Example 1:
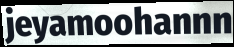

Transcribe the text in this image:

jeyamoohannn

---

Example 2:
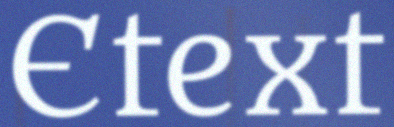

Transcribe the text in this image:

Etext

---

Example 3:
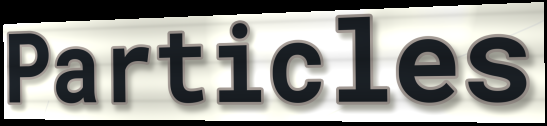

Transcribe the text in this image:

Particles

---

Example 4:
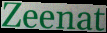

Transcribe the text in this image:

Zeenat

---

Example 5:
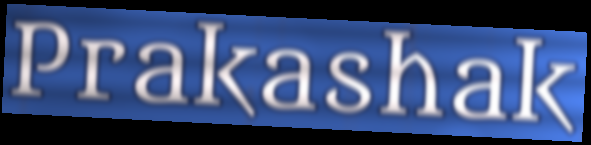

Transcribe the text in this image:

Prakashak